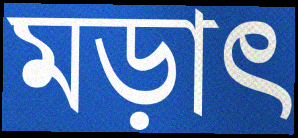
মড়াৎ